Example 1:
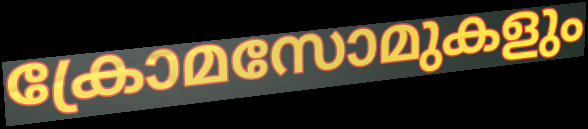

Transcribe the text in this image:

ക്രോമസോമുകളും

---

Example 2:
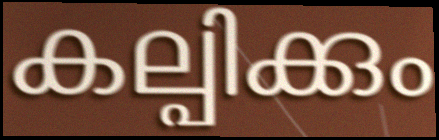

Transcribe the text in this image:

കല്പിക്കും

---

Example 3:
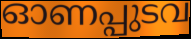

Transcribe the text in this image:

ഓണപ്പുടവ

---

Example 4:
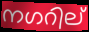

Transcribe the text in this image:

നഗറില്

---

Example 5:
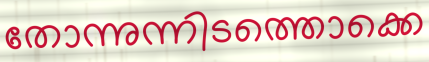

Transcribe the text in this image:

തോന്നുന്നിടത്തൊക്കെ